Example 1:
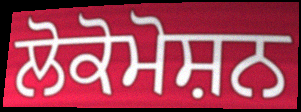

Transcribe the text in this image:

ਲੋਕੋਮੋਸ਼ਨ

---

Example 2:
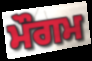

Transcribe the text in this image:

ਮੌਗਮ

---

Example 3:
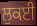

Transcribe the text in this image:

ਲੁਕਈ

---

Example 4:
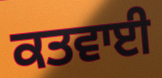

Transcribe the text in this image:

ਕਤਵਾਈ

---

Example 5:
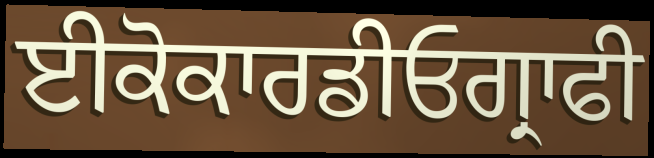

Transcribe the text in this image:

ਈਕੋਕਾਰਡੀਓਗ੍ਰਾਫੀ